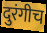
दुरंगीच